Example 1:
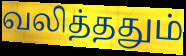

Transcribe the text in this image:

வலித்ததும்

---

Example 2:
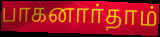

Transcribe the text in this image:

பாகனார்தாம்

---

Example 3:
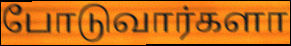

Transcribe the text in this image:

போடுவார்களா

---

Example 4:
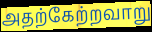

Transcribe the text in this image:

அதற்கேற்றவாறு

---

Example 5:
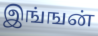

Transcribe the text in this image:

இங்ஙன்